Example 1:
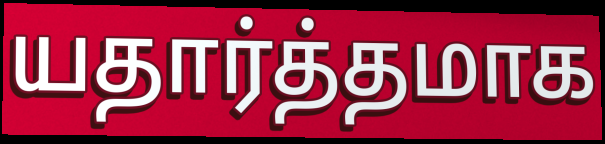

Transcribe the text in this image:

யதார்த்தமாக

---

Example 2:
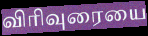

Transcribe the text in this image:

விரிவுரையை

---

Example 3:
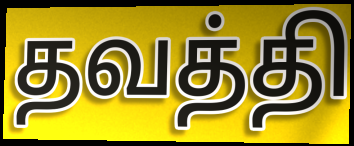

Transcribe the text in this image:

தவத்தி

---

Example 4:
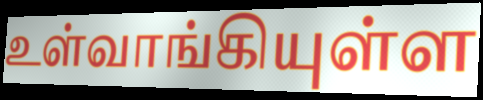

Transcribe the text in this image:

உள்வாங்கியுள்ள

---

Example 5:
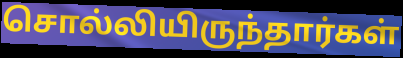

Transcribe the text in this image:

சொல்லியிருந்தார்கள்